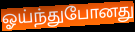
ஓய்ந்துபோனது